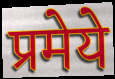
प्रमेये